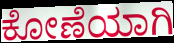
ಕೋಣೆಯಾಗಿ